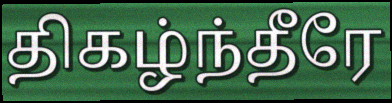
திகழ்ந்தீரே